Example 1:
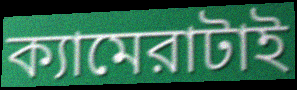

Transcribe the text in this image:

ক্যামেরাটাই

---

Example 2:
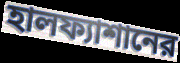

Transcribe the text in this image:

হালফ্যাশানের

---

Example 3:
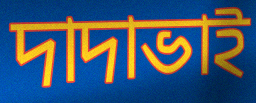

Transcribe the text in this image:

দাদাভাই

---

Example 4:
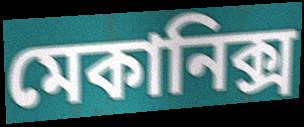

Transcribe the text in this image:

মেকানিক্স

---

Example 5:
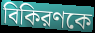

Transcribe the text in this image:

বিকিরণকে